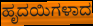
ಹೃದಯಿಗಳಾದ